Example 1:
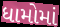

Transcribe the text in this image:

ધામોમાં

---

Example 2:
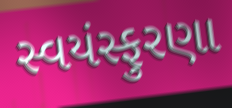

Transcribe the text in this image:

સ્વયંસ્ફુરણા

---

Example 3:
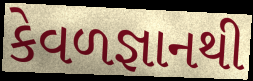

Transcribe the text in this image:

કેવળજ્ઞાનથી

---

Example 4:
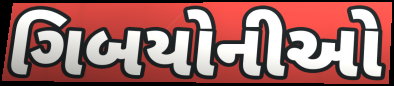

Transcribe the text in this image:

ગિબયોનીઓ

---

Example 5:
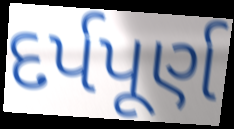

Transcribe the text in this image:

દર્પપૂર્ણ